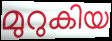
മുറുകിയ